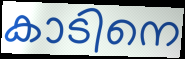
കാടിനെ